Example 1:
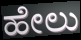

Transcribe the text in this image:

ಹೇಲು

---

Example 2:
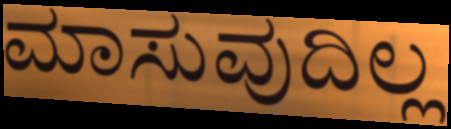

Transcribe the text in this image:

ಮಾಸುವುದಿಲ್ಲ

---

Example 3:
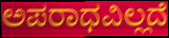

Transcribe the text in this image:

ಅಪರಾಧವಿಲ್ಲದೆ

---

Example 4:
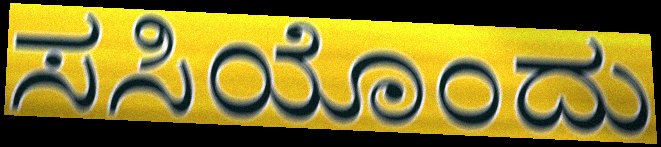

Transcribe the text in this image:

ಸಸಿಯೊಂದು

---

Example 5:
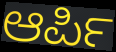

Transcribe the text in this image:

ಆರ್ಪಿ